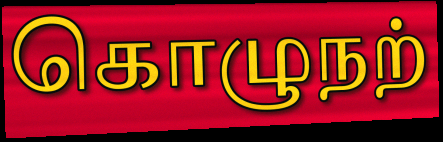
கொழுநற்